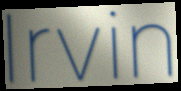
Irvin